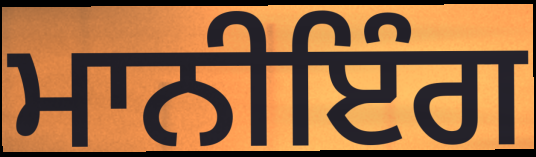
ਮਾਨੀਇੰਗ